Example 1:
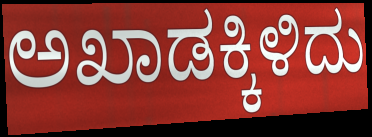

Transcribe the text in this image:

ಅಖಾಡಕ್ಕಿಳಿದು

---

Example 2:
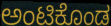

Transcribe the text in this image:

ಅಂಟಿಕೊಂಡ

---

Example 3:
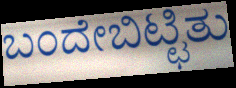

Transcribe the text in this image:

ಬಂದೇಬಿಟ್ಟಿತು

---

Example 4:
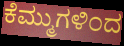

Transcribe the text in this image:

ಕೆಮ್ಮುಗಳಿಂದ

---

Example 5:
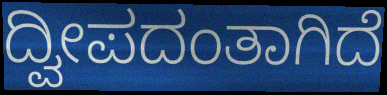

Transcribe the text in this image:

ದ್ವೀಪದಂತಾಗಿದೆ